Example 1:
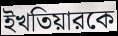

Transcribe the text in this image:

ইখতিয়ারকে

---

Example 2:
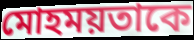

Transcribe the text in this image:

মোহময়তাকে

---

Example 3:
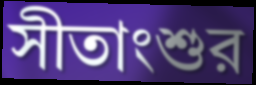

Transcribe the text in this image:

সীতাংশুর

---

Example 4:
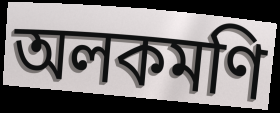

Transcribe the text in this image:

অলকমণি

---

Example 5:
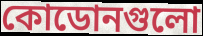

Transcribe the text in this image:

কোডোনগুলো